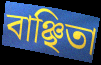
বাঞ্ছিতা